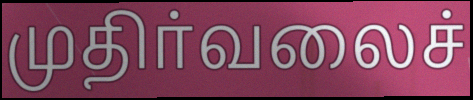
முதிர்வலைச்